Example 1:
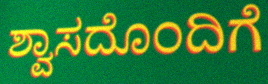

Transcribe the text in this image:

ಶ್ವಾಸದೊಂದಿಗೆ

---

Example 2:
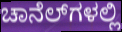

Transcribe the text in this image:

ಚಾನೆಲ್‍ಗಳಲ್ಲಿ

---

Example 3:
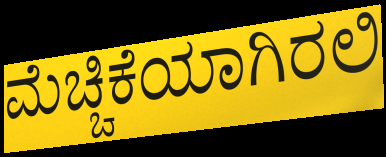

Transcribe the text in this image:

ಮೆಚ್ಚಿಕೆಯಾಗಿರಲಿ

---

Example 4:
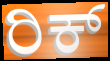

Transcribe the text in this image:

ರಿಕ್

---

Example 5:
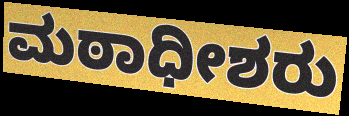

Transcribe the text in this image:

ಮಠಾಧೀಶರು